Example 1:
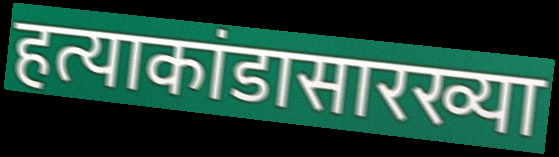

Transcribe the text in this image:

हत्याकांडासारख्या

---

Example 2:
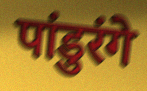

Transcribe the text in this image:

पांडुरंगे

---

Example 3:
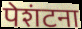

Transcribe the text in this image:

पेशंटना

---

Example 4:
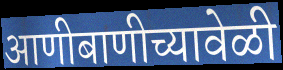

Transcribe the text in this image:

आणीबाणीच्यावेळी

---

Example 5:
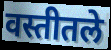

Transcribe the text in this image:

वस्तीतले